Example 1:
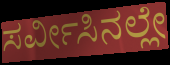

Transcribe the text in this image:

ಸರ್ವೀಸಿನಲ್ಲೇ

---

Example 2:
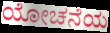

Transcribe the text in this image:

ಯೋಚನೆಯ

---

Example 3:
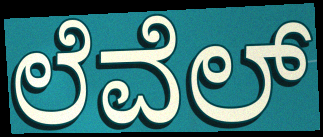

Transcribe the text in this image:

ಲೆವೆಲ್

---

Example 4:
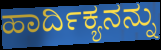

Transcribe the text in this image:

ಹಾರ್ದಿಕ್ಯನನ್ನು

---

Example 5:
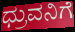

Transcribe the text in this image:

ಧ್ರುವನಿಗೆ